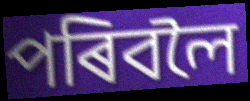
পৰিবলৈ